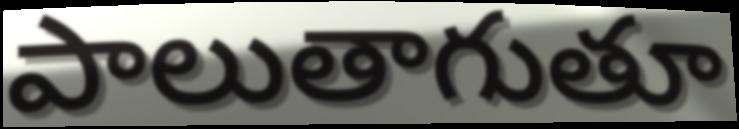
పాలుతాగుతూ